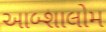
આબ્શાલોમ